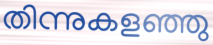
തിന്നുകളഞ്ഞു